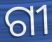
ଗୀ